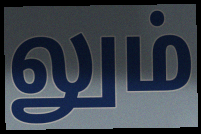
லும்